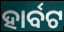
ହାର୍ବଟ